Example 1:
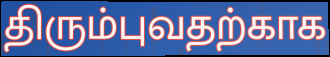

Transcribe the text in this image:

திரும்புவதற்காக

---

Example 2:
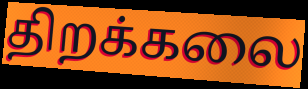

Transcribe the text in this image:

திறக்கலை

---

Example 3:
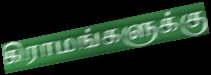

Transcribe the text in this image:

கிராமங்களுக்கு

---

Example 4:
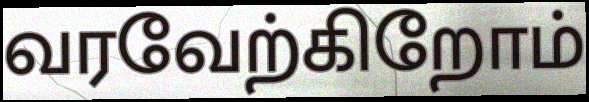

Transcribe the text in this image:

வரவேற்கிறோம்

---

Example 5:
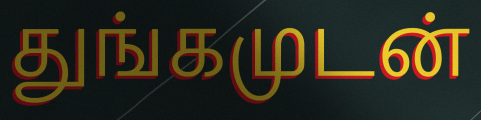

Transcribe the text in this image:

துங்கமுடன்